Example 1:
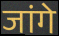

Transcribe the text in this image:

जांगे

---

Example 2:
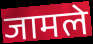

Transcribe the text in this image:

जामले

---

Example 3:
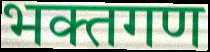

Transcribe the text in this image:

भक्तगण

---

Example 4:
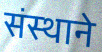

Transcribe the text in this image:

संस्थाने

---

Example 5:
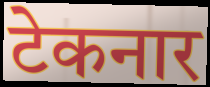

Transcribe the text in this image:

टेकनार